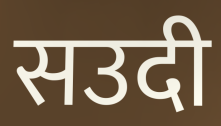
सउदी